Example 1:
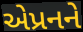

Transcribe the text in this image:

એપ્રનને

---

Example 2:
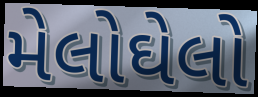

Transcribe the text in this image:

મેલોઘેલો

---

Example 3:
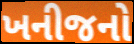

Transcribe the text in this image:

ખનીજનો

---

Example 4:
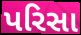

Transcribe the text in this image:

પરિસા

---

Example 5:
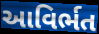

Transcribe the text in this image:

આવિર્ભત